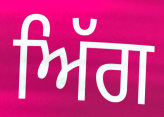
ਅਿੱਗ